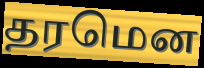
தரமென